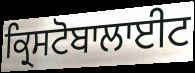
ਕ੍ਰਿਸਟੋਬਾਲਾਈਟ